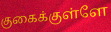
குகைக்குள்ளே